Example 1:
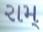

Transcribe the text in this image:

રામ્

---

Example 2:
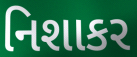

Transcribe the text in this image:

નિશાકર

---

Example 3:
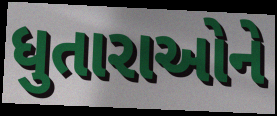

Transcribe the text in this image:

ધુતારાઓને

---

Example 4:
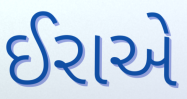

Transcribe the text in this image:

ઈરાએ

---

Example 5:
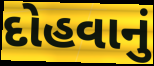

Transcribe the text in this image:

દોહવાનું